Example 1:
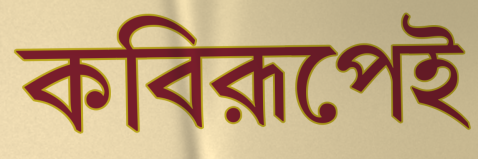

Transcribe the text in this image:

কবিরূপেই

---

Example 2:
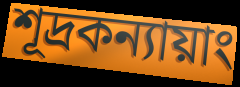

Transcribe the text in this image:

শূদ্রকন্যায়াং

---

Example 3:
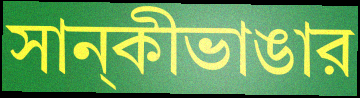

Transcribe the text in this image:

সান্কীভাঙার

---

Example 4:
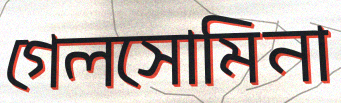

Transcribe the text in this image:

গেলসোমিনা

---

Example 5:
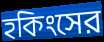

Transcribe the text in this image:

হকিংসের